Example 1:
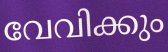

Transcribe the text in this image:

വേവിക്കും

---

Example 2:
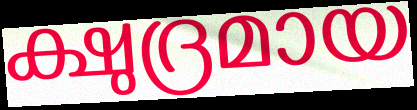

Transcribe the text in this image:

ക്ഷുദ്രമായ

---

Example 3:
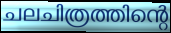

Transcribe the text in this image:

ചലചിത്രത്തിന്റെ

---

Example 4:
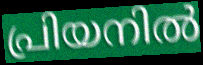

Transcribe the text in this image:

പ്രിയനിൽ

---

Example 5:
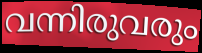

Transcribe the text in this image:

വന്നിരുവരും